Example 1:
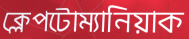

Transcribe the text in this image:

ক্লেপটোম্যানিয়াক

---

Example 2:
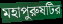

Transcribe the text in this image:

মহাপুরুষটির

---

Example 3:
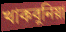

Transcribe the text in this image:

খাকবুনিয়া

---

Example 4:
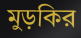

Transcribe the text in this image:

মুড়কির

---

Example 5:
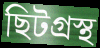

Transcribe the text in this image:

ছিটগ্রস্থ